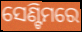
ସେଣ୍ଟିମରେ